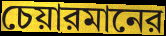
চেয়ারমানের